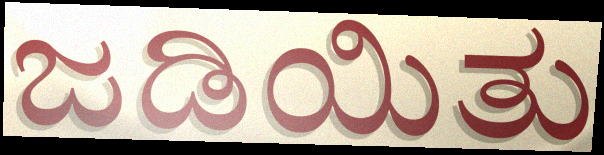
ಜಡಿಯಿತು